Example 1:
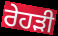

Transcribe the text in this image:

ਰੇਹੜੀ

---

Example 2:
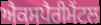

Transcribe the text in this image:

ਐਕਸਪੈਰੀਮੈਂਟਲ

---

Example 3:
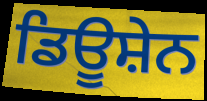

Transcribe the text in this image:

ਡਿਊਸ਼ੇਨ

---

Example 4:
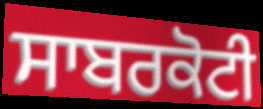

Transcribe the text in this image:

ਸਾਬਰਕੋਟੀ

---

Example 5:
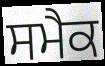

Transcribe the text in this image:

ਸਮੈਕ